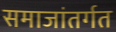
समाजांतर्गत